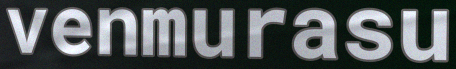
venmurasu